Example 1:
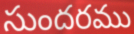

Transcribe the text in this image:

సుందరము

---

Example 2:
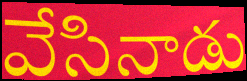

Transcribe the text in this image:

వేసినాడు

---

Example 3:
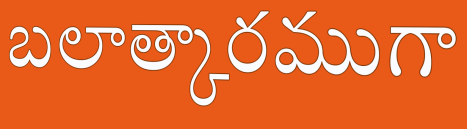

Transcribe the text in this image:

బలాత్కారముగా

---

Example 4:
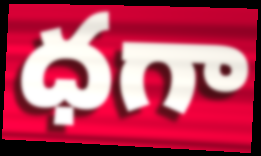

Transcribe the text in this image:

ధగా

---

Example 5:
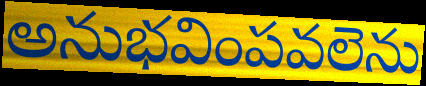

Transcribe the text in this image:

అనుభవింపవలెను